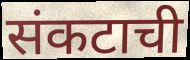
संकटाची